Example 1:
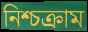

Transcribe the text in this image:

নিশ্চক্রাম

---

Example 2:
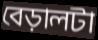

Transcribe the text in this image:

বেড়ালটা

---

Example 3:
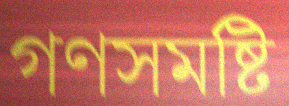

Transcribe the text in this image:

গণসমষ্টি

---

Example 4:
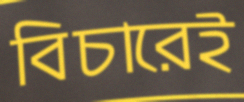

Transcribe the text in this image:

বিচারেই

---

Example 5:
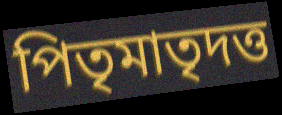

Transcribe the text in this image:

পিতৃমাতৃদত্ত